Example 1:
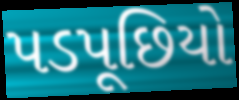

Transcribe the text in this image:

પડપૂછિયો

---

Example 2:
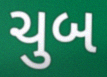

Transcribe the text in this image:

ચુબ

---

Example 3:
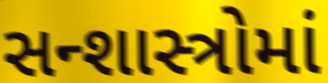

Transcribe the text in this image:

સન્શાસ્ત્રોમાં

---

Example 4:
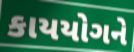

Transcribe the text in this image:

કાયયોગને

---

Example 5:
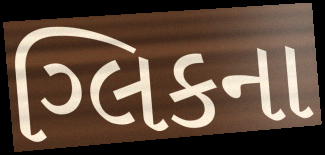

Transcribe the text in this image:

ગ્લિકના